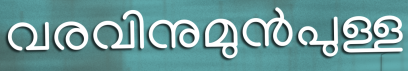
വരവിനുമുൻപുള്ള